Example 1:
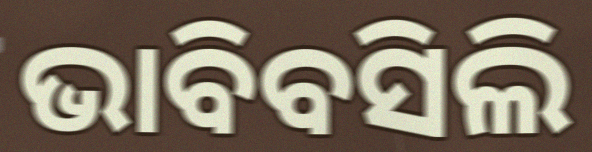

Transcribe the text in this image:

ଭାବିବସିଲି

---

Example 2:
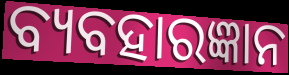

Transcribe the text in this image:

ବ୍ୟବହାରଜ୍ଞାନ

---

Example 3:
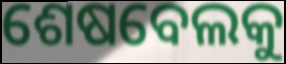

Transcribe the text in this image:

ଶେଷବେଲକୁ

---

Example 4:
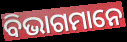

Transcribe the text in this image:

ବିଭାଗମାନେ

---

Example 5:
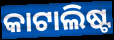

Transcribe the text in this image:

କାଟାଲିଷ୍ଟ